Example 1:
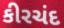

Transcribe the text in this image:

કીરચંદ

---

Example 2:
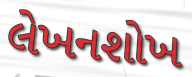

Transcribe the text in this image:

લેખનશોખ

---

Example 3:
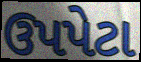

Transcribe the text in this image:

ઉપપેટા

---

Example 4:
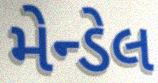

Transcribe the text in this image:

મેન્ડેલ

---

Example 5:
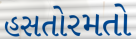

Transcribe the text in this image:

હસતોરમતો